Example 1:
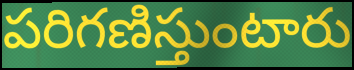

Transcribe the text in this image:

పరిగణిస్తుంటారు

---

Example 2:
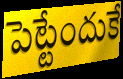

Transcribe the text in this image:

పెట్టేందుకే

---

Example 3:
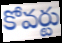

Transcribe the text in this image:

కోవర్టు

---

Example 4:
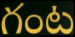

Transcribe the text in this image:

గంట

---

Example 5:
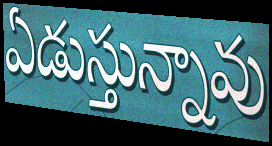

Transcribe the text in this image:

ఏడుస్తున్నావు